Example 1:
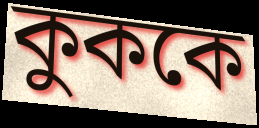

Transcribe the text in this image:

কুককে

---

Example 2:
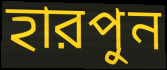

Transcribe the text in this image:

হারপুন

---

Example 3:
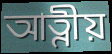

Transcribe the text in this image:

আত্নীয়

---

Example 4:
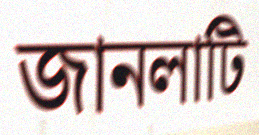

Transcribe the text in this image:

জানলাটি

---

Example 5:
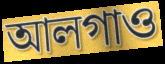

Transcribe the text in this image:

আলগাও